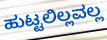
ಹುಟ್ಟಲಿಲ್ಲವಲ್ಲ